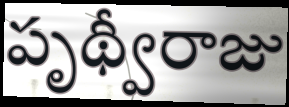
పృథ్వీరాజు